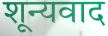
शून्यवाद